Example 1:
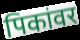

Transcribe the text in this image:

पिकांवर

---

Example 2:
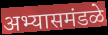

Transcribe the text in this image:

अभ्यासमंडळे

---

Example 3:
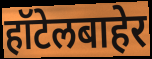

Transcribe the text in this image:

हॉटेलबाहेर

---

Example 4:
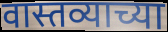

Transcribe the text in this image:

वास्तव्याच्या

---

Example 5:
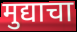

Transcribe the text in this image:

मुद्याचा